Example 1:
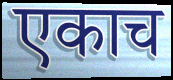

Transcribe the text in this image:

एकाच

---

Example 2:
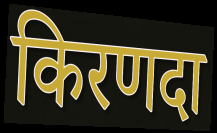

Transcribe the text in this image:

किरणदा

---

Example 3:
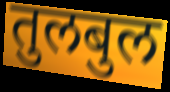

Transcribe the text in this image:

तुलबुल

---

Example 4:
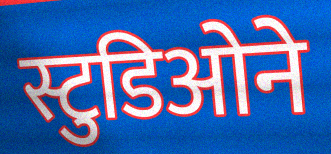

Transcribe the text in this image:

स्टुडिओने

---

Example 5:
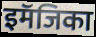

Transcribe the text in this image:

इमॅजिका